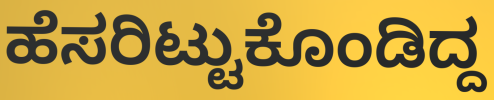
ಹೆಸರಿಟ್ಟುಕೊಂಡಿದ್ದ